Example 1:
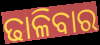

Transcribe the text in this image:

ଢାଳିବାର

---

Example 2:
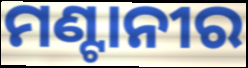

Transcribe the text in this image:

ମଣ୍ଟାନୀର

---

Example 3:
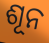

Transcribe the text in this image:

ଶୂନ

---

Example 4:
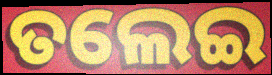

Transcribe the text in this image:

ତଲେଇ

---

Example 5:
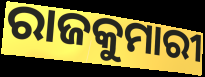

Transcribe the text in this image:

ରାଜକୁମାରୀ